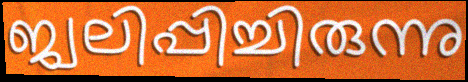
ജ്വലിപ്പിച്ചിരുന്നു